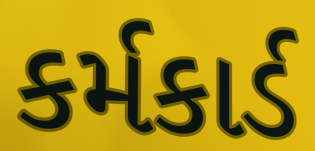
કર્મકાર્ડ